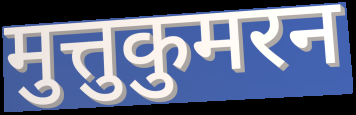
मुत्तुकुमरन